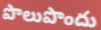
పొలుపొందు